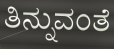
ತಿನ್ನುವಂತೆ